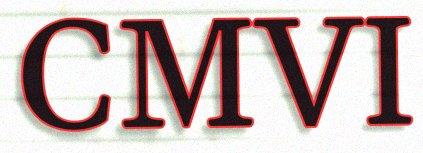
CMVI